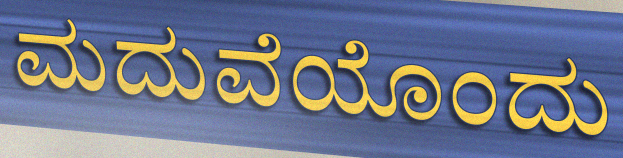
ಮದುವೆಯೊಂದು